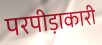
परपीड़ाकारी